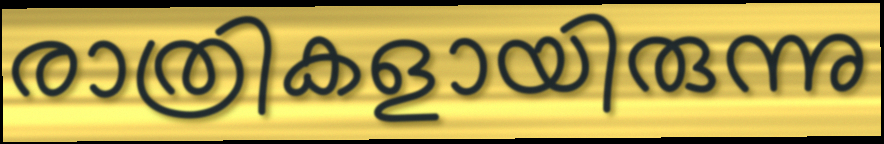
രാത്രികളായിരുന്നു